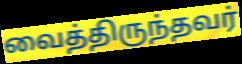
வைத்திருந்தவர்